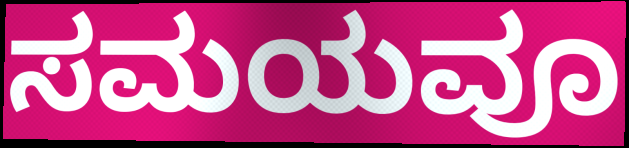
ಸಮಯವೂ